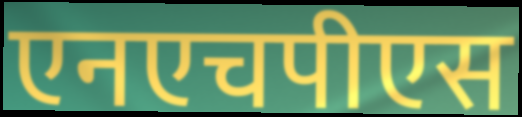
एनएचपीएस